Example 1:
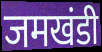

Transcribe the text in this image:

जमखंडी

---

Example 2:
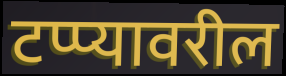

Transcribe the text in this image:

टप्प्यावरील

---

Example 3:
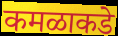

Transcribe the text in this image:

कमळाकडे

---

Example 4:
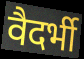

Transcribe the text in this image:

वैदर्भी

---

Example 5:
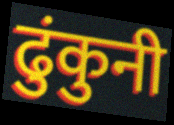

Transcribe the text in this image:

ढुंकुनी